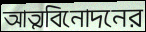
আত্মবিনোদনের